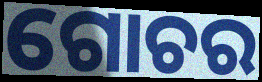
ଗୋଚର